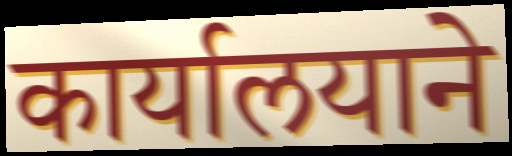
कार्यालयाने